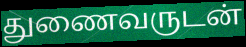
துணைவருடன்